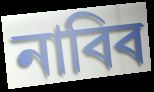
নাবিব